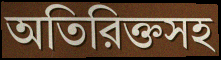
অতিরিক্তসহ